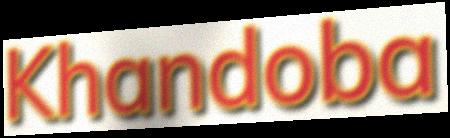
Khandoba